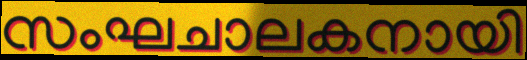
സംഘചാലകനായി